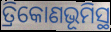
ତ୍ରିକୋଣଭୂମିସ୍ଥ